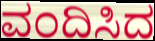
ವಂದಿಸಿದ